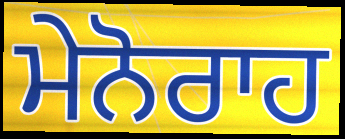
ਮੇਨੋਰਾਹ